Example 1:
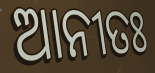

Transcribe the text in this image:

ଆନୀତଃ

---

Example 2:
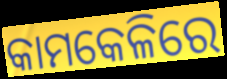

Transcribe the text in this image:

କାମକେଳିରେ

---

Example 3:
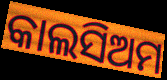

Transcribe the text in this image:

କାଲସିଅମ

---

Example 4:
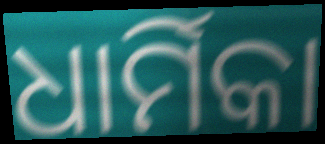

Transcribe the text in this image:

ଧାର୍ମିକା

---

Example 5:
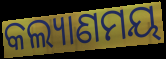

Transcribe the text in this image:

କଲ୍ୟାଣମୟ